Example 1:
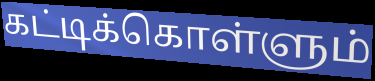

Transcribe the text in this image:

கட்டிக்கொள்ளும்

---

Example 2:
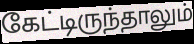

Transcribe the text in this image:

கேட்டிருந்தாலும்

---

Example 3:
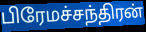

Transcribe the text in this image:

பிரேமச்சந்திரன்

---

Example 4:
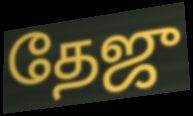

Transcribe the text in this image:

தேஜு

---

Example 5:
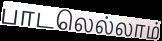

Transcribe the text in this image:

பாடலெல்லாம்